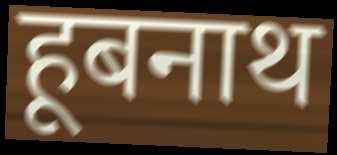
हूबनाथ